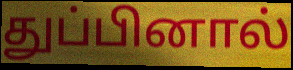
துப்பினால்